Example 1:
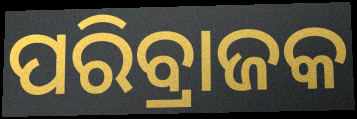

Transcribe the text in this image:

ପରିବ୍ରାଜକ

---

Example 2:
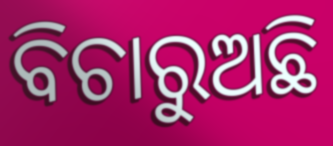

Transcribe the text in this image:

ବିଚାରୁଅଛି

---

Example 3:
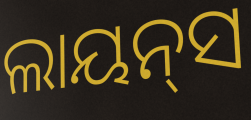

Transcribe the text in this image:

ଲାୟନ୍‌ସ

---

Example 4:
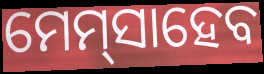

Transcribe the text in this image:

ମେମ୍‌ସାହେବ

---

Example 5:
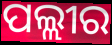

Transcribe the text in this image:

ପଲ୍ଲୀର